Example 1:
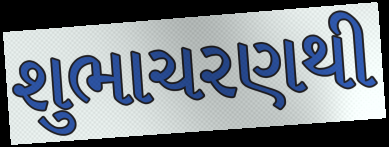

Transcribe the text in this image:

શુભાચરણથી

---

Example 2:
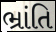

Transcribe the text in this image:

ભ્રાંતિ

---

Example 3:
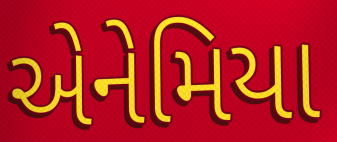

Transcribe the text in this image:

એનેમિયા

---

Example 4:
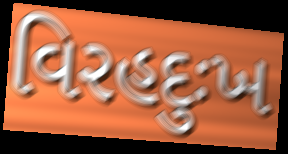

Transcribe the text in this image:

વિરહદુઃખ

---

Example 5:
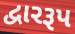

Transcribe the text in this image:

દ્વારરૂપ